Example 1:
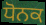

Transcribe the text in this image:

ਧੋਨਕ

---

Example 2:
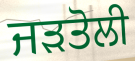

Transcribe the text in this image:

ਜੜਤੋਲੀ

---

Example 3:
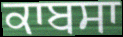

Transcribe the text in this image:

ਕਾਬਸਾ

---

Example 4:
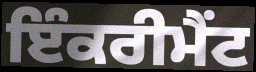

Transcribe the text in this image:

ਇੰਕਰੀਮੈਂਟ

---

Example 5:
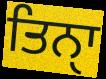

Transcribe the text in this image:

ਤਿਨੑਾ